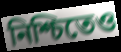
নিশ্চিতেও